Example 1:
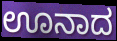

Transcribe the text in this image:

ಊನಾದ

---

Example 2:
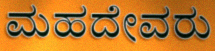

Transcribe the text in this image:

ಮಹದೇವರು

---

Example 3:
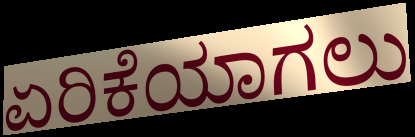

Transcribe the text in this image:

ಏರಿಕೆಯಾಗಲು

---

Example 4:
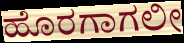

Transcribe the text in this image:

ಹೊರಗಾಗಲೀ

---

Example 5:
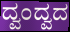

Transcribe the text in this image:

ದ್ವಂದ್ವದ